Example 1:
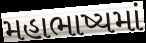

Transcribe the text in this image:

મહાભાષ્યમાં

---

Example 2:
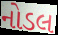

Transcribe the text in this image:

નોડલ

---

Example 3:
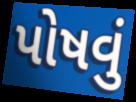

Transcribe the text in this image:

પોષવું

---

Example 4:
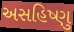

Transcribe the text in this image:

અસહિષ્ણુ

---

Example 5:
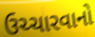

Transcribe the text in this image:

ઉચ્ચારવાનો